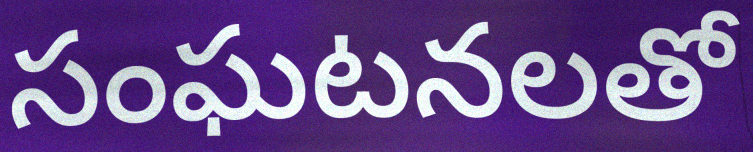
సంఘటనలతో